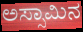
ಅಸ್ಸಾಮಿನ